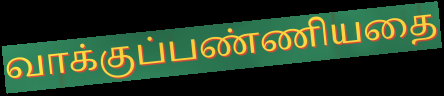
வாக்குப்பண்ணியதை